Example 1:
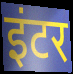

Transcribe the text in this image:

इंटर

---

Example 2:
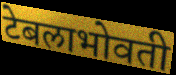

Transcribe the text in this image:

टेबलाभोवती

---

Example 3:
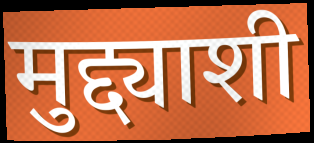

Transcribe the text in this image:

मुद्द्याशी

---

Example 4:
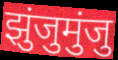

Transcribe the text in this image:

झुंजुमुंजु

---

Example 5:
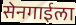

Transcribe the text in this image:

सेनगाईला